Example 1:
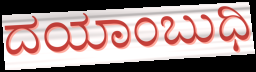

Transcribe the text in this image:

ದಯಾಂಬುಧಿ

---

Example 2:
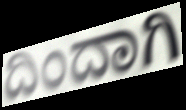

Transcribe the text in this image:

ದಿಂದಾಗಿ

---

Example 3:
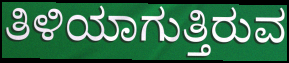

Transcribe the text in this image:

ತಿಳಿಯಾಗುತ್ತಿರುವ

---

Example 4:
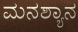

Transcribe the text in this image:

ಮನಶ್ಯಾನ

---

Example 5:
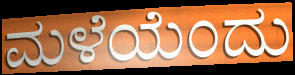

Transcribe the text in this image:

ಮಳೆಯೆಂದು